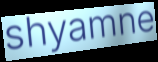
shyamne